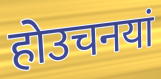
होउचनयां